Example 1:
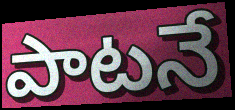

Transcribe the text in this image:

పాటనే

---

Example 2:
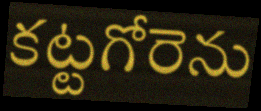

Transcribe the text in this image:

కట్టగోరెను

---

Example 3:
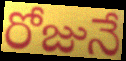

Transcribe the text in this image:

రోజునే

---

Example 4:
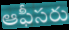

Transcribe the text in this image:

ఆఫీసరు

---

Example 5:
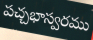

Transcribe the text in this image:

పచ్చభాస్వరము